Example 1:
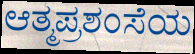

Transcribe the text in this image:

ಆತ್ಮಪ್ರಶಂಸೆಯ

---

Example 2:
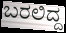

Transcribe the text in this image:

ಬರಲಿದ್ದ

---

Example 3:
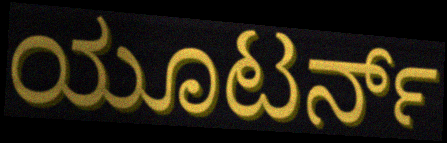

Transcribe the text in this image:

ಯೂಟರ್ನ್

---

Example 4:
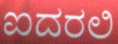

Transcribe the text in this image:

ಐದರಲಿ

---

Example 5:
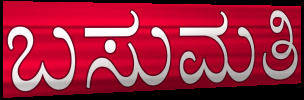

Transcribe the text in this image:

ಬಸುಮತಿ